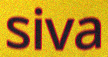
siva